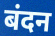
बंदन